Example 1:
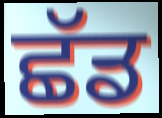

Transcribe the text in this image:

ਛੱਡ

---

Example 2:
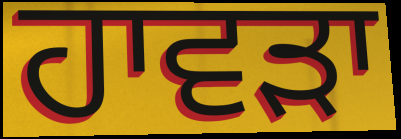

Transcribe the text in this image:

ਹਾਵਡ਼ਾ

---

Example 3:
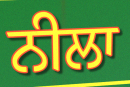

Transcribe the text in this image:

ਨੀਲਾ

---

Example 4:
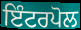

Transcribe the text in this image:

ਇੰਟਰਪੋਲ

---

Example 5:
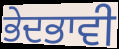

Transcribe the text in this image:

ਭੇਦਭਾਵੀ